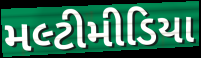
મલ્ટીમીડિયા